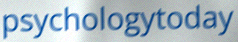
psychologytoday